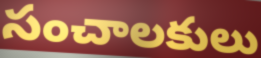
సంచాలకులు